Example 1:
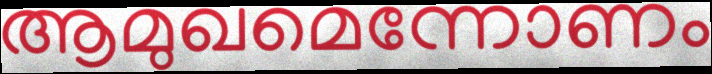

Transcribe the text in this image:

ആമുഖമെന്നോണം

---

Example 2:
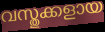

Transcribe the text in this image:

വസ്തുക്കളായ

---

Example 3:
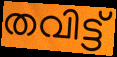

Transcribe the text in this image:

തവിട്ട്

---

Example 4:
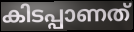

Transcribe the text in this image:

കിടപ്പാണത്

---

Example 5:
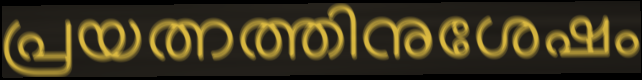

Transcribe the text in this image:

പ്രയത്നത്തിനുശേഷം